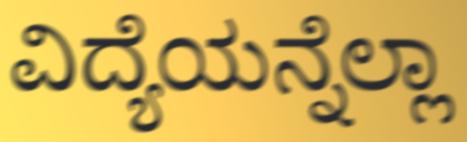
ವಿದ್ಯೆಯನ್ನೆಲ್ಲಾ